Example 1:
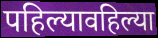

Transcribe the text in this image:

पहिल्यावहिल्या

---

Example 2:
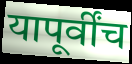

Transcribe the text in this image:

यापूर्वींच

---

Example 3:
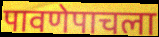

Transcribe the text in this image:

पावणेपाचला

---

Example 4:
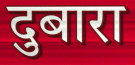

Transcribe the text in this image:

दुबारा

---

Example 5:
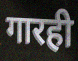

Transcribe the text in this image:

गारही